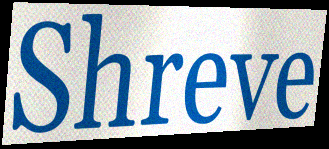
Shreve